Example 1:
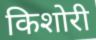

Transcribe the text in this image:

किशोरी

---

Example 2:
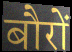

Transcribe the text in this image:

बौरों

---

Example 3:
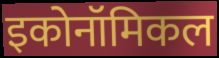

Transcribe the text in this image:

इकोनॉमिकल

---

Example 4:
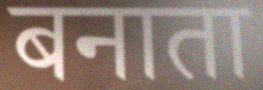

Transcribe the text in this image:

बनाता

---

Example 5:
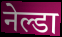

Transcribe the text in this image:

नेल्डा